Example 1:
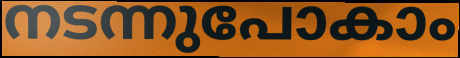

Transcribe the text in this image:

നടന്നുപോകാം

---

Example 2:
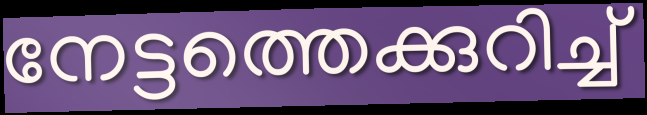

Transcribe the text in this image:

നേട്ടത്തെക്കുറിച്ച്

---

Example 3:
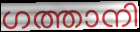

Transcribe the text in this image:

ഗത്താനി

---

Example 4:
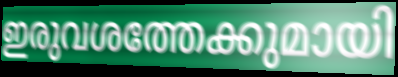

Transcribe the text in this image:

ഇരുവശത്തേക്കുമായി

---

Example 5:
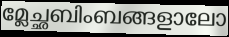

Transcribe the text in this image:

മ്ലേച്ഛബിംബങ്ങളാലോ